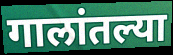
गालांतल्या